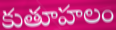
కుతూహలం